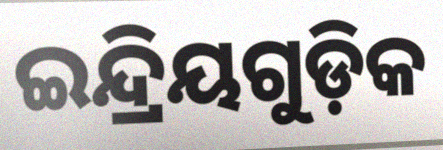
ଇନ୍ଦ୍ରିୟଗୁଡ଼ିକ